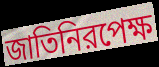
জাতিনিরপেক্ষ